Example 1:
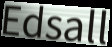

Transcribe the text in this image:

Edsall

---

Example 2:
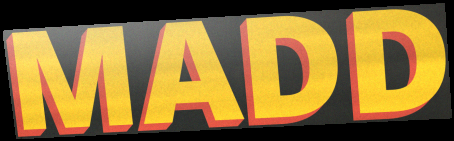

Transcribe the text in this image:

MADD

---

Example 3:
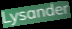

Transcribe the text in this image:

Lysander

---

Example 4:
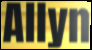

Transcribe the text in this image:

Allyn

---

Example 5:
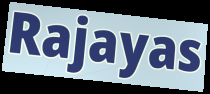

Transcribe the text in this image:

Rajayas